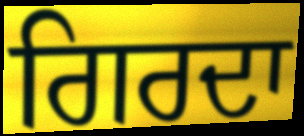
ਗਿਰਦਾ